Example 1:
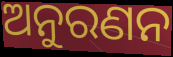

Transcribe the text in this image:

ଅନୁରଣନ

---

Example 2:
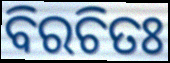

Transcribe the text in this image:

ବିରଚିତଃ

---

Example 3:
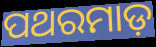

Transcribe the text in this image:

ପଥରମାଡ଼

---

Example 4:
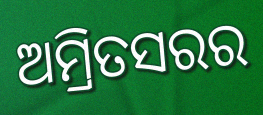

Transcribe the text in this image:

ଅମ୍ରିତସରର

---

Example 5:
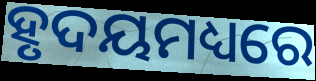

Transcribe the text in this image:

ହୃଦୟମଧ୍ୟରେ